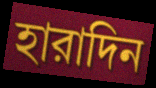
হারাদিন